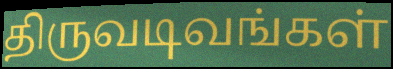
திருவடிவங்கள்